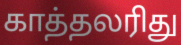
காத்தலரிது